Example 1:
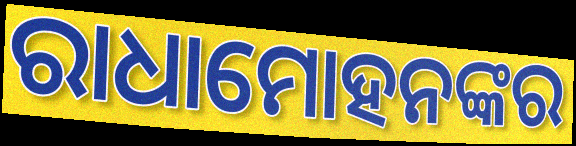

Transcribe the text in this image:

ରାଧାମୋହନଙ୍କର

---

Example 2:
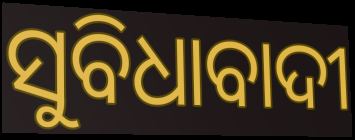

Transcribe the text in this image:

ସୁବିଧାବାଦୀ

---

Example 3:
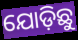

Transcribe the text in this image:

ଯୋଡ଼ିଛୁ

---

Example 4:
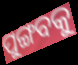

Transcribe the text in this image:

ପୁଙ୍ଗବକୁ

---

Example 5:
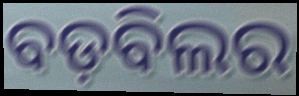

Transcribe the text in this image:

ବଡ଼ବିଲର